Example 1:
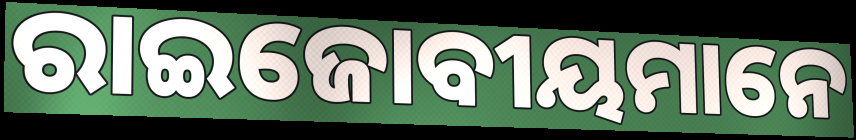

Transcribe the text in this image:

ରାଇଜୋବୀୟମାନେ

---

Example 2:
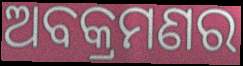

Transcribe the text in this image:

ଅବକ୍ରମଣର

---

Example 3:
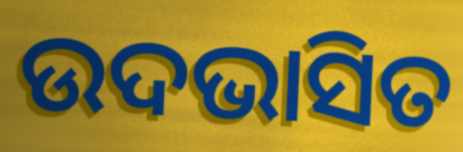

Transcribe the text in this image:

ଉଦଭାସିତ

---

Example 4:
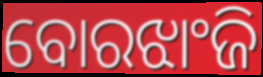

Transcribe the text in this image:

ବୋରଝାଂଜି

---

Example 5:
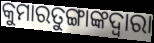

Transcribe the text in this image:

କୁମାରତୁଙ୍ଗାଙ୍କଦ୍ୱାରା